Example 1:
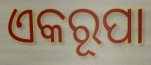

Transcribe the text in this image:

ଏକରୂପା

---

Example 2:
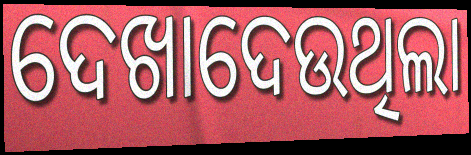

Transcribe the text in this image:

ଦେଖାଦେଉଥିଲା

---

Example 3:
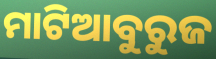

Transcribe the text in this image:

ମାଟିଆବୁରୁଜ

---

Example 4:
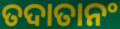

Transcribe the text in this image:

ତଦାତାନଂ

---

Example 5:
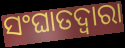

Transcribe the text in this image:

ସଂଘାତଦ୍ୱାରା